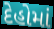
દેહોમાં